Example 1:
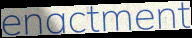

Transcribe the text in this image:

enactment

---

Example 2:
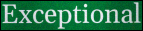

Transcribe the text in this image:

Exceptional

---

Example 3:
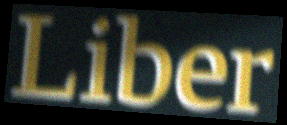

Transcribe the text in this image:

Liber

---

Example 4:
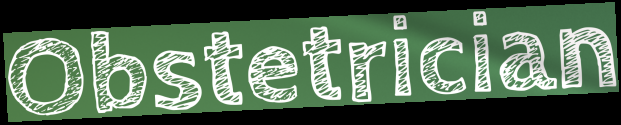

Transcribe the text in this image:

Obstetrician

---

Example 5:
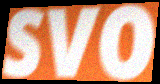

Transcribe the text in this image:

svo